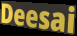
Deesai